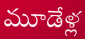
మూడేళ్ల